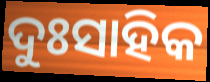
ଦୁଃସାହିକ